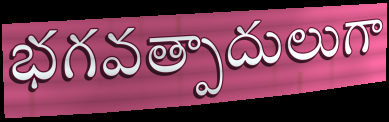
భగవత్పాదులుగా